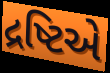
દ્રષ્ટિએ